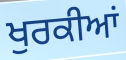
ਖੁਰਕੀਆਂ